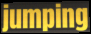
jumping